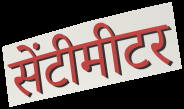
सेंटीमीटर